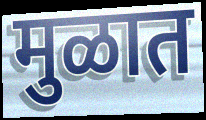
मुळात